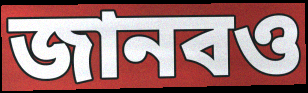
জানবও